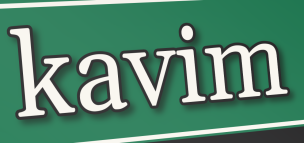
kavim